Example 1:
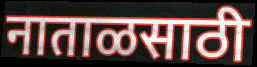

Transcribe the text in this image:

नाताळसाठी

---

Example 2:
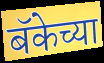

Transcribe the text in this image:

बॅकेच्या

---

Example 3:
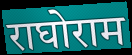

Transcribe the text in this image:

राघोराम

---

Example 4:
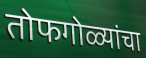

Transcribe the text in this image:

तोफगोळ्यांचा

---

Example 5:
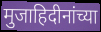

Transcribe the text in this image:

मुजाहिदीनांच्या